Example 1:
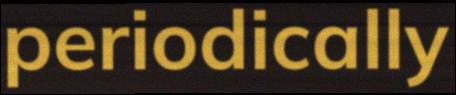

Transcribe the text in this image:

periodically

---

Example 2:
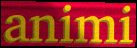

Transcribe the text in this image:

animi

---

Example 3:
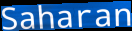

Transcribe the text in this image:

Saharan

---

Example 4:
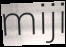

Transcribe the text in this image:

miji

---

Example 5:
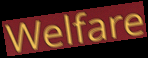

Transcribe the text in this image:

Welfare